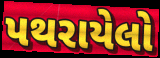
પથરાયેલો